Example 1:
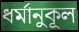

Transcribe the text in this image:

ধর্মানুকূল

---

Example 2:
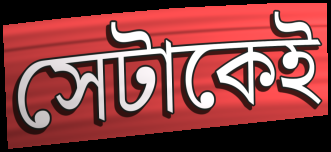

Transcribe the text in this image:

সেটাকেই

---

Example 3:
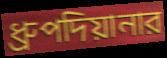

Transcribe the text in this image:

ধ্রুপদিয়ানার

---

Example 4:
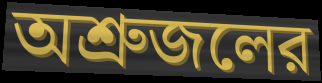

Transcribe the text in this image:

অশ্রুজলের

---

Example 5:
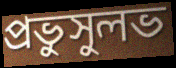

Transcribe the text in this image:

প্রভুসুলভ